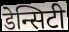
डेन्सिटी